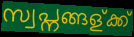
സ്വപ്നങ്ങള്ക്ക്